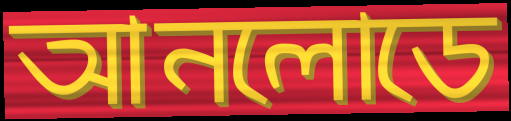
আনলোডে